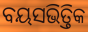
ବୟସଭିତ୍ତିକ